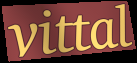
vittal